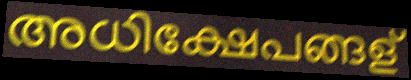
അധിക്ഷേപങ്ങള്